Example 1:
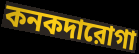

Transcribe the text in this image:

কনকদারোগা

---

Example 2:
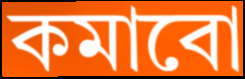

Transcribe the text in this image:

কমাবো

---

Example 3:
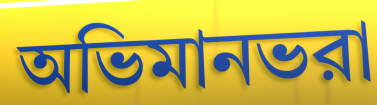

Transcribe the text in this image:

অভিমানভরা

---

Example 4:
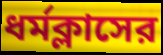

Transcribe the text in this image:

ধর্মক্লাসের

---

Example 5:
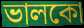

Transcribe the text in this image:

ভালকো